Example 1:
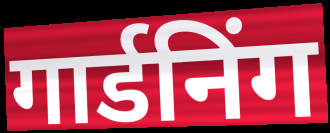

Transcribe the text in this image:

गार्डनिंग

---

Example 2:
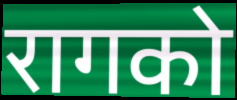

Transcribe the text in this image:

रागको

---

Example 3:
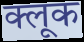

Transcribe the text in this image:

क्लूक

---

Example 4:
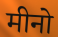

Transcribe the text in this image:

मीनो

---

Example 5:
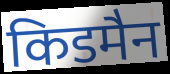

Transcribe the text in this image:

किडमैन